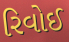
રિવોઈ